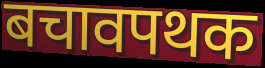
बचावपथक